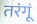
तरंगूं